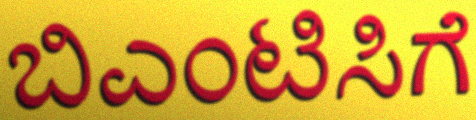
ಬಿಎಂಟಿಸಿಗೆ